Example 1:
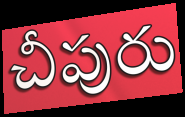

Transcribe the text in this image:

చీపురు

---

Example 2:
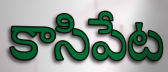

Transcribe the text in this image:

కాసిపేట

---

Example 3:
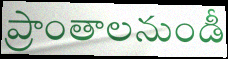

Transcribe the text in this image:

ప్రాంతాలనుండీ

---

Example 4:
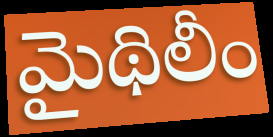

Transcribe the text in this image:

మైథిలీం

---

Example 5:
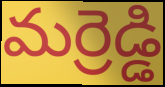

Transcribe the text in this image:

మర్రెడ్డి